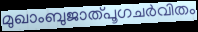
മുഖാംബുജാത്പൂഗചർവിതം